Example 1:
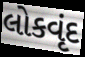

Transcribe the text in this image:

લોકવૃંદ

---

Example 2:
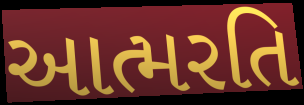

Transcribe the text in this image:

આત્મરતિ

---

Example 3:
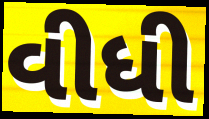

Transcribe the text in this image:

વીધી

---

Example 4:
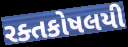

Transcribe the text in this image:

રક્તકોષલયી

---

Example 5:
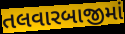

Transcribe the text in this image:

તલવારબાજીમાં